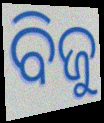
ବିଜୁ